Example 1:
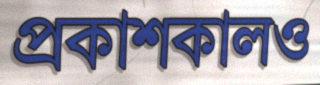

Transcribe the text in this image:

প্রকাশকালও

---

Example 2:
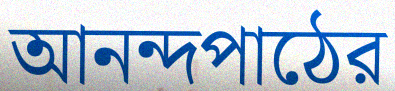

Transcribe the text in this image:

আনন্দপাঠের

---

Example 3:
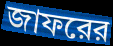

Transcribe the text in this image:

জাফরের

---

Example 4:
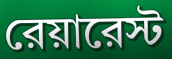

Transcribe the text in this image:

রেয়ারেস্ট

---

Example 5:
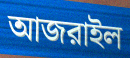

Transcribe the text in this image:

আজরাইল